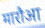
मारौआ